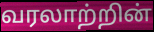
வரலாற்றின்